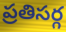
ప్రతిసర్గ